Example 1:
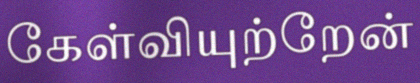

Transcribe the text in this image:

கேள்வியுற்றேன்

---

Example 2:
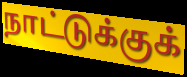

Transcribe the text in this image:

நாட்டுக்குக்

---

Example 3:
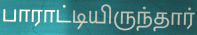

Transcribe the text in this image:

பாராட்டியிருந்தார்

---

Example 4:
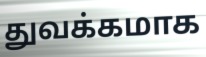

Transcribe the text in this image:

துவக்கமாக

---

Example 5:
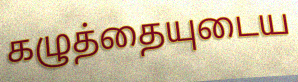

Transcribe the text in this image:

கழுத்தையுடைய